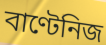
বাণ্টেনিজ